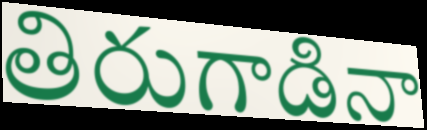
తిరుగాడినా